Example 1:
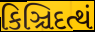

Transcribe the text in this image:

કિઞ્ચિદત્થં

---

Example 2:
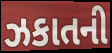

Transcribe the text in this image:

ઝકાતની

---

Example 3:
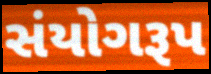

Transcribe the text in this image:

સંયોગરૂપ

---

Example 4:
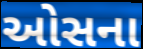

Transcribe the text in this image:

ઓસના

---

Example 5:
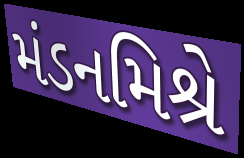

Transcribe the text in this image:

મંડનમિશ્રે